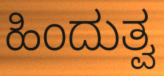
ಹಿಂದುತ್ವ